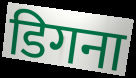
डिगना